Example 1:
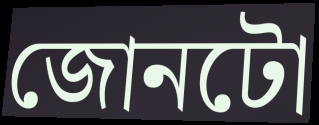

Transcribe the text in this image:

জোনটো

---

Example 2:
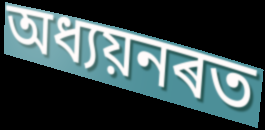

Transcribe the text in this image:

অধ্যয়নৰত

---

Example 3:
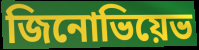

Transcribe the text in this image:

জিনোভিয়েভ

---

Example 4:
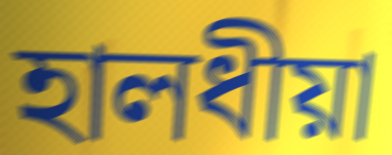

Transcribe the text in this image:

হালধীয়া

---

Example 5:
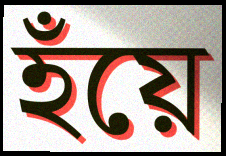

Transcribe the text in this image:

হঁয়ে